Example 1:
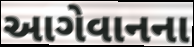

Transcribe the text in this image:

આગેવાનના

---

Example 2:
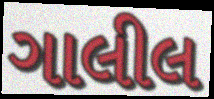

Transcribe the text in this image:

ગાલીલ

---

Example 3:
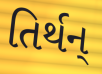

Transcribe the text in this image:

તિર્થન્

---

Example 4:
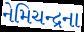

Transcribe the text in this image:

નેમિચન્દ્રના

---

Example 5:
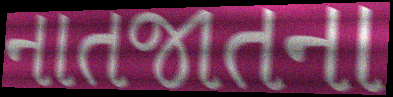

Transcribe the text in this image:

નાતજાતના